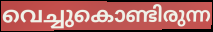
വെച്ചുകൊണ്ടിരുന്ന